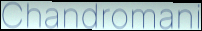
Chandromani